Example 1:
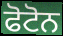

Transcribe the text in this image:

ਫੋਟੋਨ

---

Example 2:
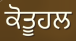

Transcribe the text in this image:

ਕੋਤੂਹਲ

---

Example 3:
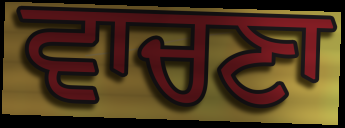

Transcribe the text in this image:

ਵਾਚਣਾ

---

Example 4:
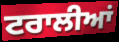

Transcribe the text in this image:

ਟਰਾਲੀਆਂ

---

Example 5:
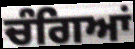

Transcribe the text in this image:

ਚੰਗਿਆਂ